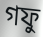
গফু